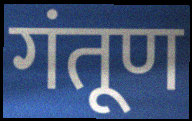
गंतूण